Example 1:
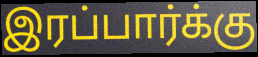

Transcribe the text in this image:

இரப்பார்க்கு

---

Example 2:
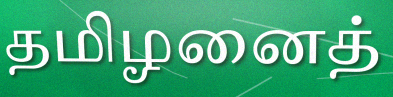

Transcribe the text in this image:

தமிழனைத்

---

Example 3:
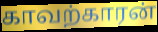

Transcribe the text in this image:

காவற்காரன்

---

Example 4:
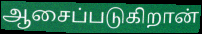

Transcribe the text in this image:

ஆசைப்படுகிறான்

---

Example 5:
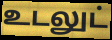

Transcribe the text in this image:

உடலுட்